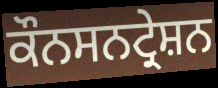
ਕੌਨਸਨਟ੍ਰੇਸ਼ਨ